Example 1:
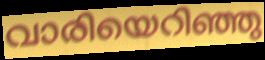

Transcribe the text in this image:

വാരിയെറിഞ്ഞു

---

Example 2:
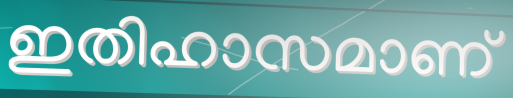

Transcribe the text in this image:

ഇതിഹാസമാണ്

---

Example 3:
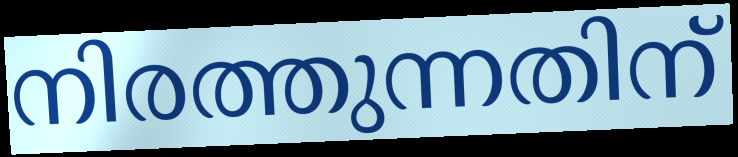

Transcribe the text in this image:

നിരത്തുന്നതിന്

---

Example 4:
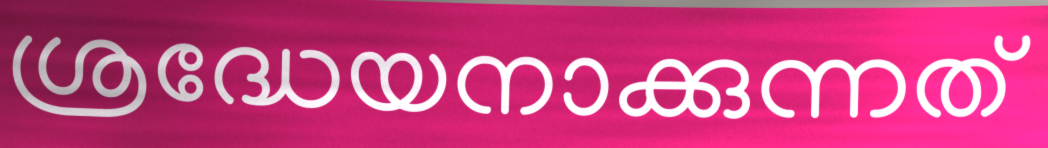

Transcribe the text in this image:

ശ്രദ്ധേയനാക്കുന്നത്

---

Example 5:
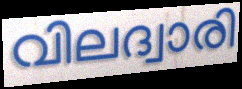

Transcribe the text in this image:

വിലദ്വാരി